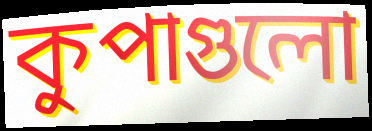
কুপাগুলো